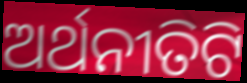
ଅର୍ଥନୀତିଟି